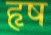
हृष